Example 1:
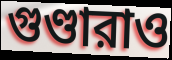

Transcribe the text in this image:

গুণ্ডারাও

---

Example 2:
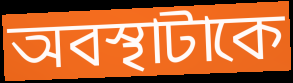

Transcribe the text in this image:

অবস্থাটাকে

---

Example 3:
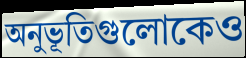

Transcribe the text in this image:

অনুভূতিগুলোকেও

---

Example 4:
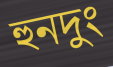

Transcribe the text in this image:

হুনদুং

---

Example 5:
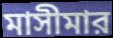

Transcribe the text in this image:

মাসীমার